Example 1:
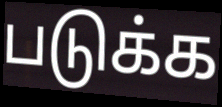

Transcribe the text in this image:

படுக்க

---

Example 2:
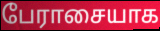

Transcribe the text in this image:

பேராசையாக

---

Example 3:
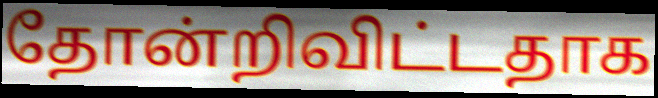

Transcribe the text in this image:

தோன்றிவிட்டதாக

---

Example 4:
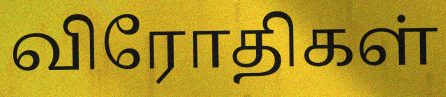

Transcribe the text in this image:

விரோதிகள்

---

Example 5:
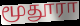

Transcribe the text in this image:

மூதூரா